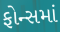
ફોન્સમાં